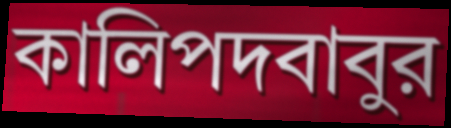
কালিপদবাবুর